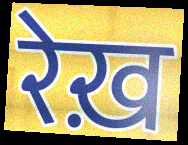
रेख़